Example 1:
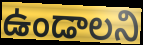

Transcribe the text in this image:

ఉండాలని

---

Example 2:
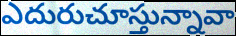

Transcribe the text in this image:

ఎదురుచూస్తున్నావా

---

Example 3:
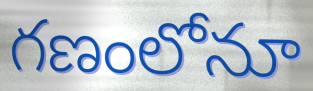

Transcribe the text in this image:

గణంలోనూ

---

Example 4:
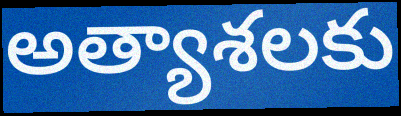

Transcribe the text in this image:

అత్యాశలకు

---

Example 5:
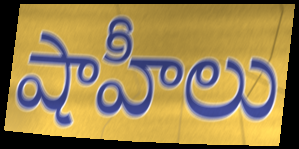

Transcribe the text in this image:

షాహీలు